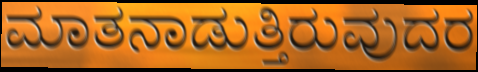
ಮಾತನಾಡುತ್ತಿರುವುದರ